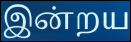
இன்றய